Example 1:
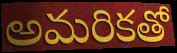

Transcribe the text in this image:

అమరికతో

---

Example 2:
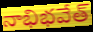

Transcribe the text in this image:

నాభిభవేత్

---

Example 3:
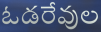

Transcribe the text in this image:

ఓడరేవుల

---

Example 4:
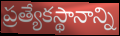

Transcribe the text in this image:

ప్రత్యేకస్థానాన్ని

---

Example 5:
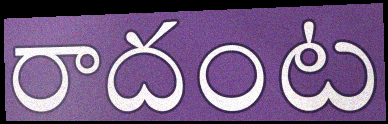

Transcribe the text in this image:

రాదంట